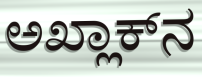
ಅಖ್ಲಾಕ್‍ನ